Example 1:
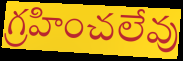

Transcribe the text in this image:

గ్రహించలేవు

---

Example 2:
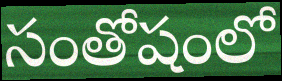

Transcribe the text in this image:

సంతోషంలో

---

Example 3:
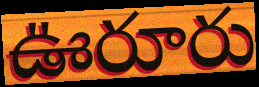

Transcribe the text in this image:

ఊరూరు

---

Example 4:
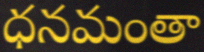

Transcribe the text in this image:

ధనమంతా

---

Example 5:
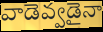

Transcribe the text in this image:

వాడెవ్వడైనా